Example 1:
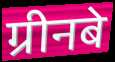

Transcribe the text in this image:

ग्रीनबे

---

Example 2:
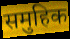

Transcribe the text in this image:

समुहिक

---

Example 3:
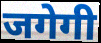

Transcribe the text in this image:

जगेगी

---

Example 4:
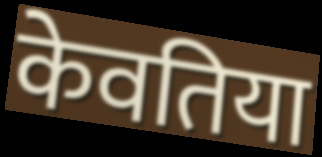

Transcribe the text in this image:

केवतिया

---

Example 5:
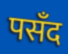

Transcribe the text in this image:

पसँद